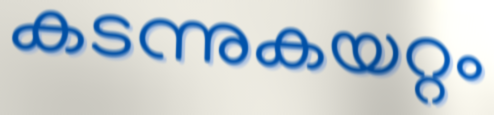
കടന്നുകയറ്റം